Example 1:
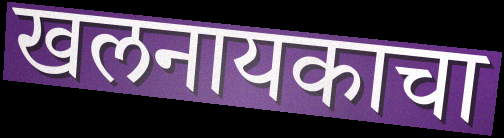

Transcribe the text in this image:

खलनायकाचा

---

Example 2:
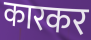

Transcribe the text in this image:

कारकर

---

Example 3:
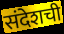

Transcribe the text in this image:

संदेशची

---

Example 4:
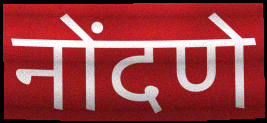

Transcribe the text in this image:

नोंदणे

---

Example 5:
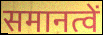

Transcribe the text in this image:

समानत्वें